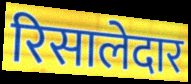
रिसालेदार